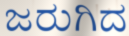
ಜರುಗಿದ